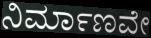
ನಿರ್ಮಾಣವೇ